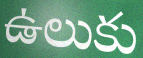
ఉలుకు